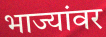
भाज्यांवर